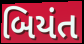
બિયંત